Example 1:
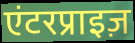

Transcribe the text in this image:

एंटरप्राइज़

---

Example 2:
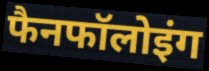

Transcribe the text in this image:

फैनफॉलोइंग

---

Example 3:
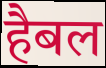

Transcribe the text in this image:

हैबल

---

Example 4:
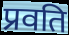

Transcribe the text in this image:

प्रवति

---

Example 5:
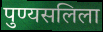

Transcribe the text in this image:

पुण्यसलिला